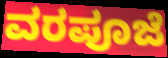
ವರಪೂಜೆ